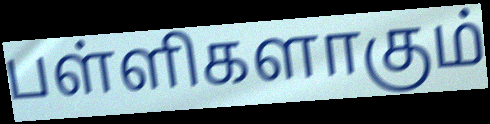
பள்ளிகளாகும்